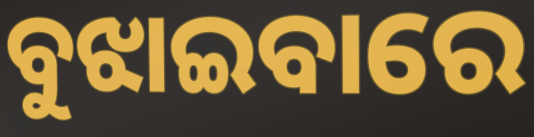
ବୁଝାଇବାରେ